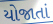
યોજાતાં